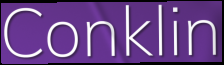
Conklin